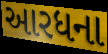
આરધના